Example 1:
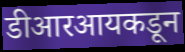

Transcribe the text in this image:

डीआरआयकडून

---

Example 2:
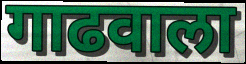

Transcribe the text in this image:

गाढवाला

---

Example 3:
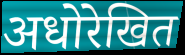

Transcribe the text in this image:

अधोरेखित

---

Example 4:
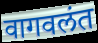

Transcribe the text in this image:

वागवलंत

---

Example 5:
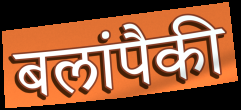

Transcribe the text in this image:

बलांपैकी